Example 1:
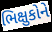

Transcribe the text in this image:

ભિક્ષુકોને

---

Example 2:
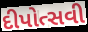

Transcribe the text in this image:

દીપોત્સવી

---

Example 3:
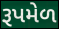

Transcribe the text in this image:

રૂપમેળ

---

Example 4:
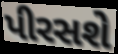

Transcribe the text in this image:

પીરસશે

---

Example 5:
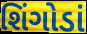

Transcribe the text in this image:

શિંગોડાં